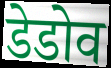
डेडोव